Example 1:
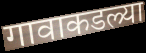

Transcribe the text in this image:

गावाकडल्या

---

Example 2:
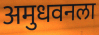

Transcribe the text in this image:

अमुधवनला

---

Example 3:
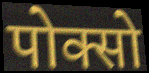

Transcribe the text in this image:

पोक्सो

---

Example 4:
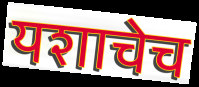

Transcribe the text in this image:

यशाचेच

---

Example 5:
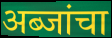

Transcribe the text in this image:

अब्जांचा